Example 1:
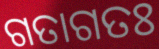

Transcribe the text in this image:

ଗତାଗତଃ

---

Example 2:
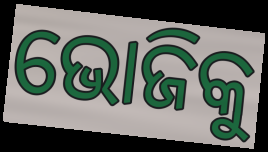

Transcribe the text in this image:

ଭୋଜିକୁ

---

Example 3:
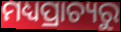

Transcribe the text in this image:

ମଧ୍ୟପ୍ରାଚ୍ୟରୁ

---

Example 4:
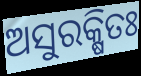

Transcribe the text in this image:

ଅସୁରକ୍ଷିତଃ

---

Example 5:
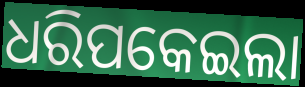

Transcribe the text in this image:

ଧରିପକେଇଲା